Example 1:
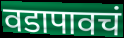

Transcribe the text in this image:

वडापावचं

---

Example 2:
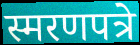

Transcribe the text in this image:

स्मरणपत्रे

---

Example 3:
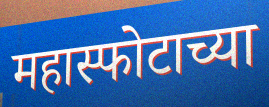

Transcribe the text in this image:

महास्फोटाच्या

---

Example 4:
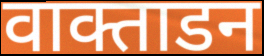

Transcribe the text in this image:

वाक्ताडन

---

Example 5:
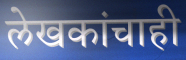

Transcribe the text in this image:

लेखकांचाही